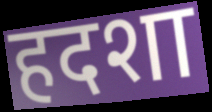
हदशा